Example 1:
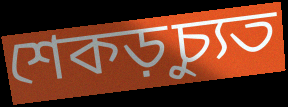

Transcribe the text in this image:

শেকড়চ্যুত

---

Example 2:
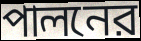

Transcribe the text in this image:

পালনের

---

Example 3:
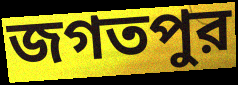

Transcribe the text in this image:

জগতপুর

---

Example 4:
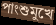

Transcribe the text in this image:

পাংশুমুখে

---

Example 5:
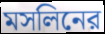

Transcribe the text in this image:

মসলিনের